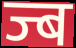
ज्ब